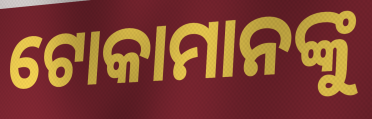
ଟୋକାମାନଙ୍କୁ